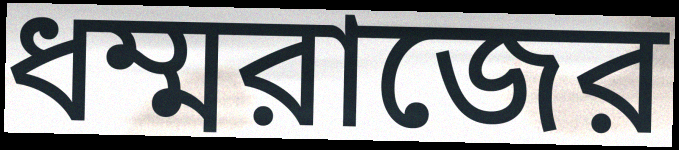
ধম্মরাজের